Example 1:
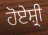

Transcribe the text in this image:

ਹੋਏਸ਼੍ਰੀ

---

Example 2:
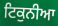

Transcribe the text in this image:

ਟਿਕੁਨੀਆ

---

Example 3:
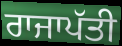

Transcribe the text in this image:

ਰਾਜਾਪੱਤੀ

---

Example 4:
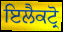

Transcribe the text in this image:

ਇਲੈਕਟ੍ਰੋ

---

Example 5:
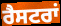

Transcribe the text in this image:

ਰੈਸਟਰਾਂ